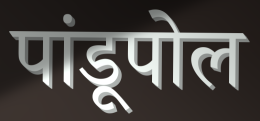
पांडूपोल